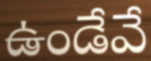
ఉండేవే